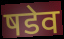
षडेव